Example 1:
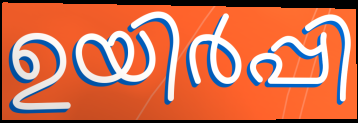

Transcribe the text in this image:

ഉയിർപ്പി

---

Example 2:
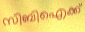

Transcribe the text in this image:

സിബിഐക്ക്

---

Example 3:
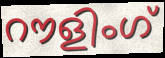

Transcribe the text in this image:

റൗളിംഗ്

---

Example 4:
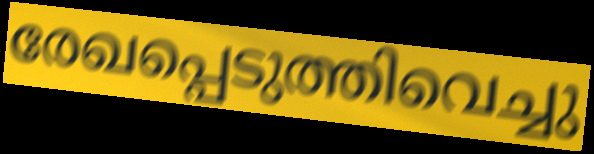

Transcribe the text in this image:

രേഖപ്പെടുത്തിവെച്ചു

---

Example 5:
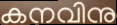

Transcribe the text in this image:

കനവിനു